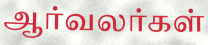
ஆர்வலர்கள்